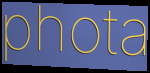
phota